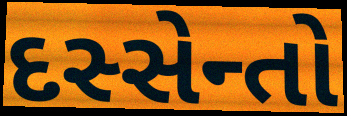
દસ્સેન્તો